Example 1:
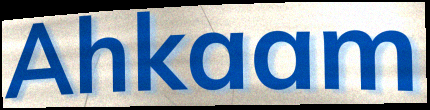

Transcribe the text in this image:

Ahkaam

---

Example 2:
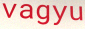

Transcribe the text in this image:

vagyu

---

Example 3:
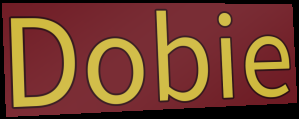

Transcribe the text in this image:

Dobie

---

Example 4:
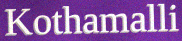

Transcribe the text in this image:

Kothamalli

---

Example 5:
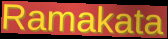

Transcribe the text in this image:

Ramakata